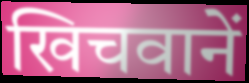
खिचवानें